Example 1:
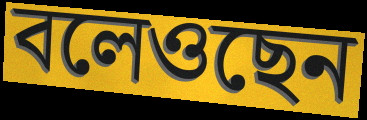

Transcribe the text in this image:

বলেওছেন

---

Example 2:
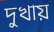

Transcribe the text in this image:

দুখায়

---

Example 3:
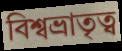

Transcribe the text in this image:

বিশ্বভ্রাতৃত্ব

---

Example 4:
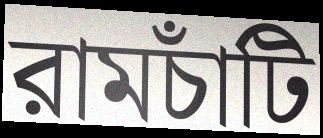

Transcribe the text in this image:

রামচাঁটি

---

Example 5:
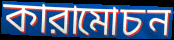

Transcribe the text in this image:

কারামোচন